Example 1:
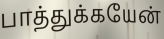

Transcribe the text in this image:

பாத்துக்கயேன்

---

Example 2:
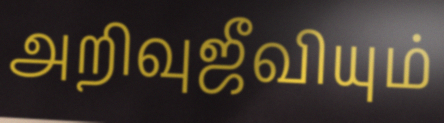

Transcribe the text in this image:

அறிவுஜீவியும்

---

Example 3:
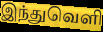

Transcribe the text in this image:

இந்துவெளி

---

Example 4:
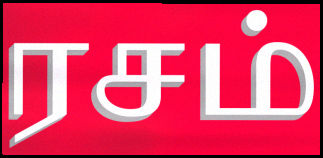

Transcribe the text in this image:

ரசம்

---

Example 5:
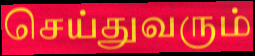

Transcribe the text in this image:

செய்துவரும்